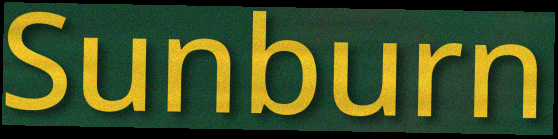
Sunburn